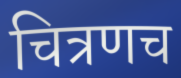
चित्रणच